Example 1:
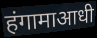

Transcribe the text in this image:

हंगामाआधी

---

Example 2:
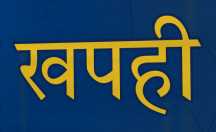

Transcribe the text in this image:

खपही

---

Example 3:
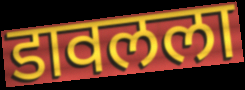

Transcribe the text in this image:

डावलला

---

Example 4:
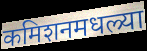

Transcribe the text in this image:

कमिशनमधल्या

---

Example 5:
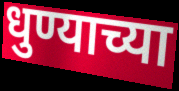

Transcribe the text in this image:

धुण्याच्या